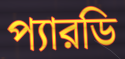
প্যারডি